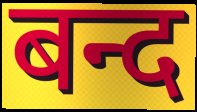
बन्द